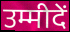
उम्मीदें